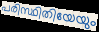
പരിസ്ഥിതിയേയും